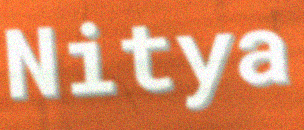
Nitya